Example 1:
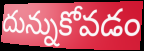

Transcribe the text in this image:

దున్నుకోవడం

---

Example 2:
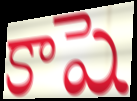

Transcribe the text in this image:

కాషె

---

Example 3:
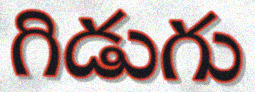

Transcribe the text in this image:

గిడుగు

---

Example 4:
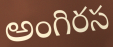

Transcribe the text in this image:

అంగిరస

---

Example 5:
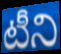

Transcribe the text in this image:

టీని